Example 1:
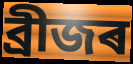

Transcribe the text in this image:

ব্ৰীজৰ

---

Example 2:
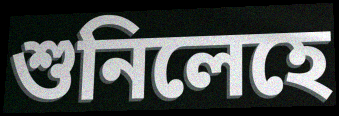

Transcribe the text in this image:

শুনিলেহে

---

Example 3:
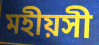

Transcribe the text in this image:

মহীয়সী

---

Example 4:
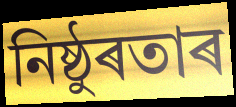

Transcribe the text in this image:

নিষ্ঠুৰতাৰ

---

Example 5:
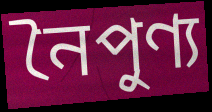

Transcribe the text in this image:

নৈপুণ্য